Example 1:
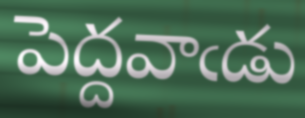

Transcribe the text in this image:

పెద్దవాఁడు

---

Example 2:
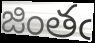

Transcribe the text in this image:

జింతఁ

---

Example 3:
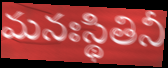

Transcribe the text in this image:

మనఃస్థితినీ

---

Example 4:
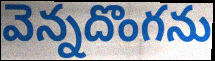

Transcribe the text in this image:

వెన్నదొంగను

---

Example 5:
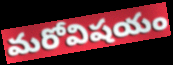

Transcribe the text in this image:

మరోవిషయం